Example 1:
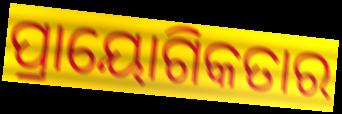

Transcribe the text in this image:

ପ୍ରାୟୋଗିକତାର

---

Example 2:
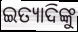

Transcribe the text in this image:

ଇତ୍ଯାଦିଙ୍କୁ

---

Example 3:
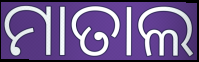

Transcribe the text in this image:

ମାତାଲ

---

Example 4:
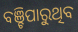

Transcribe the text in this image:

ବଞ୍ଚିପାରୁଥିବ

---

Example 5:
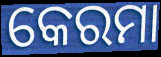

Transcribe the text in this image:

କେରମା